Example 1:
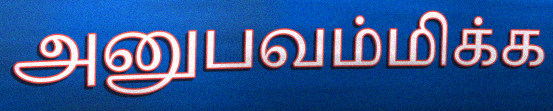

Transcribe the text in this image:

அனுபவம்மிக்க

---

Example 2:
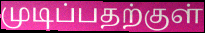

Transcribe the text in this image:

முடிப்பதற்குள்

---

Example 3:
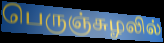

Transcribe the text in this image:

பெருஞ்சுழலில்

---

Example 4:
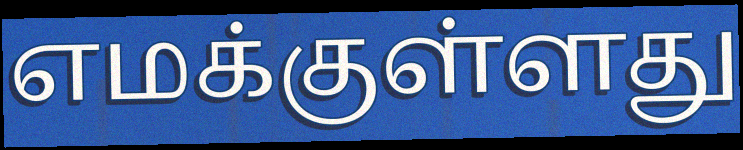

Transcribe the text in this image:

எமக்குள்ளது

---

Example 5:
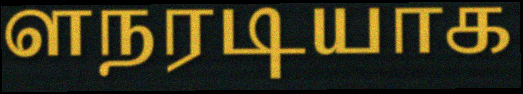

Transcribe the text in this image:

ளநரடியாக